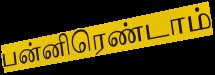
பன்னிரெண்டாம்